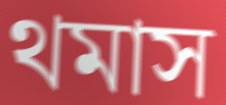
থমাস